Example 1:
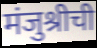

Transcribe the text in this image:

मंजुश्रीची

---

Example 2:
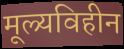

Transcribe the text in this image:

मूल्यविहीन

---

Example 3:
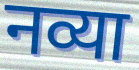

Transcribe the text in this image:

नव्‍या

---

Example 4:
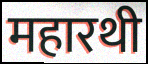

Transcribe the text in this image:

महारथी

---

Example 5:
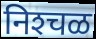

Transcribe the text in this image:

निश्‍चळ